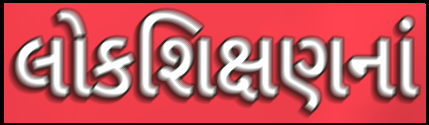
લોકશિક્ષણનાં